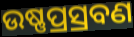
ଉଷ୍ଣପ୍ରସ୍ରବଣ